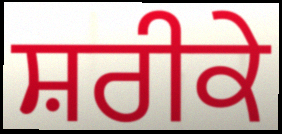
ਸ਼ਰੀਕੇ